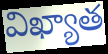
విఖ్యాత